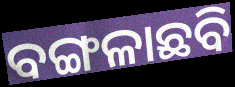
ବଙ୍ଗଳାଛବି